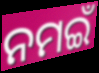
ନମଇଁ